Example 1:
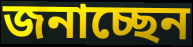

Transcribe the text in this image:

জনাচ্ছেন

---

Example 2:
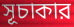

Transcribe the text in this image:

সূচাকার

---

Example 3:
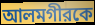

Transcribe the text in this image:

আলমগীরকে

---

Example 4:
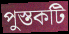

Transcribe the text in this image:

পুস্তকটি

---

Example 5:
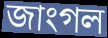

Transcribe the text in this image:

জাংগল